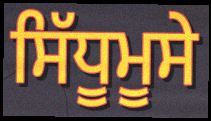
ਸਿੱਧੂਮੂਸੇ